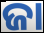
ଜା